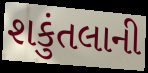
શકુંતલાની